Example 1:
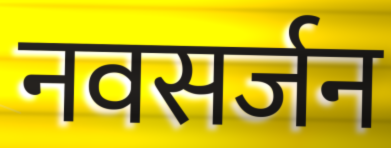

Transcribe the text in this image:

नवसर्जन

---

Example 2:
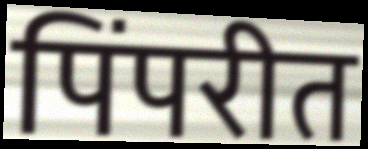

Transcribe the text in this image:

पिंपरीत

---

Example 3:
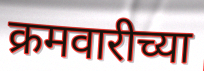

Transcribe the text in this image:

क्रमवारीच्या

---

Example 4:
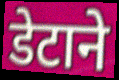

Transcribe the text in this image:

डेटाने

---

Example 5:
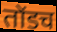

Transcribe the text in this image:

तोंडच